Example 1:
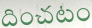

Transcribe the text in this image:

దించటం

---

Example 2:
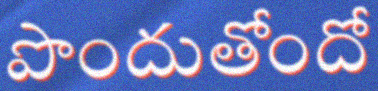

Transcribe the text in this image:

పొందుతోందో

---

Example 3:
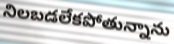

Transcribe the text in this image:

నిలబడలేకపోతున్నాను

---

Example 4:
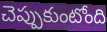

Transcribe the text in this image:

చెప్పుకుంటోంది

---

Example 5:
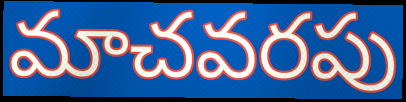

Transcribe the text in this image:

మాచవరపు